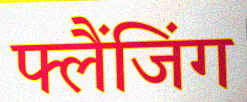
फ्लैंजिंग